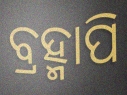
ବ୍ରହ୍ମାପି